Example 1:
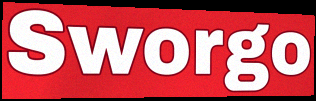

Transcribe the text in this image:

Sworgo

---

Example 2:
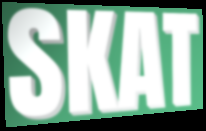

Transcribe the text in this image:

SKAT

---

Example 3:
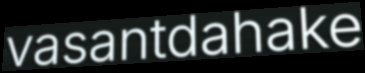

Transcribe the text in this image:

vasantdahake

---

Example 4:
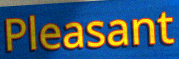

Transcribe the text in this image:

Pleasant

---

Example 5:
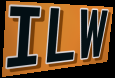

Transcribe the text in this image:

ILW